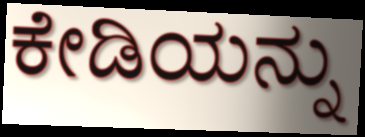
ಕೇಡಿಯನ್ನು